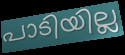
പാടിയില്ല